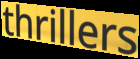
thrillers